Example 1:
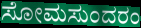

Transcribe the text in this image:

ಸೋಮಸುಂದರಂ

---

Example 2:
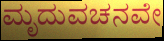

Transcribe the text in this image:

ಮೃದುವಚನವೇ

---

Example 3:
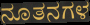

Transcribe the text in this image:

ನೂತನಗಳ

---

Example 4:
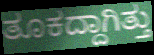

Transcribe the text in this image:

ತೂಕದ್ದಾಗಿತ್ತು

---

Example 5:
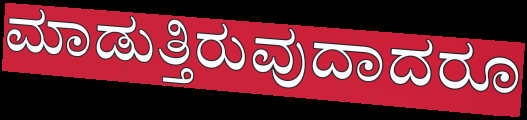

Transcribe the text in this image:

ಮಾಡುತ್ತಿರುವುದಾದರೂ